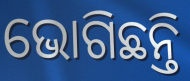
ଭୋଗିଛନ୍ତି